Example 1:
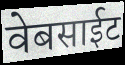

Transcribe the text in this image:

वेबसाईट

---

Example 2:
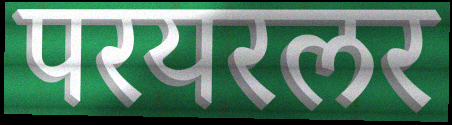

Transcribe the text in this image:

परयरलर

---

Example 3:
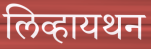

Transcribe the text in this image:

लिव्हायथन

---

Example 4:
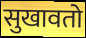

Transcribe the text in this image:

सुखावतो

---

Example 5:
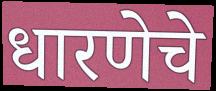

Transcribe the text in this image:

धारणेचे